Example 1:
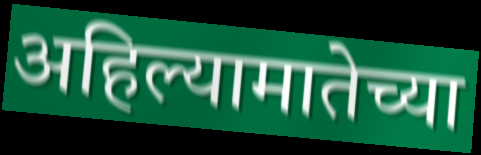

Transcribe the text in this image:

अहिल्यामातेच्या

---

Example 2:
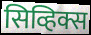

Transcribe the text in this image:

सिव्हिक्स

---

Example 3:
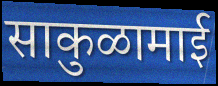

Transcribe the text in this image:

साकुळामाई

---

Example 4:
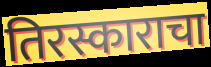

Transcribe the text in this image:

तिरस्काराचा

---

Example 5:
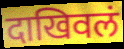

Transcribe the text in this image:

दाखिवलं